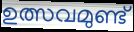
ഉത്സവമുണ്ട്